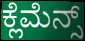
ಕ್ಲೆಮೆನ್ಸ್